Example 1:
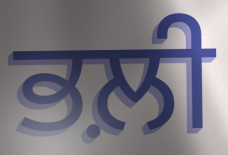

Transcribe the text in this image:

ਭਲ਼ੀ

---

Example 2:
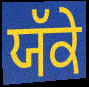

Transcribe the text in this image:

ਯੱਕੇ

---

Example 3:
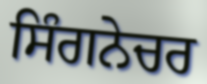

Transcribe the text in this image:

ਸਿੰਗਨੇਚਰ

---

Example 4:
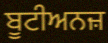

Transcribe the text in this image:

ਬੂਟੀਅਨਜ਼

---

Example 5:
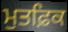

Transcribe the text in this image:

ਮੁਤਫ਼ਿਕ